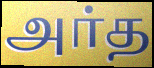
அர்த